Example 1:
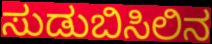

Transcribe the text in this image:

ಸುಡುಬಿಸಿಲಿನ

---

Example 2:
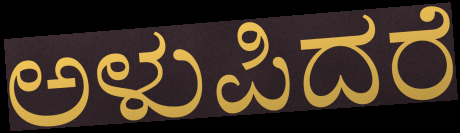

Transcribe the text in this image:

ಅಳುಪಿದರೆ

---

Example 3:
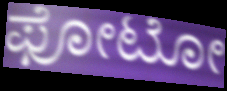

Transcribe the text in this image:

ಫೋಟೋ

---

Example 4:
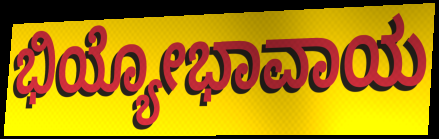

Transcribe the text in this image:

ಭಿಯ್ಯೋಭಾವಾಯ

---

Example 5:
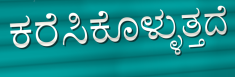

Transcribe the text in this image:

ಕರೆಸಿಕೊಳ್ಳುತ್ತದೆ